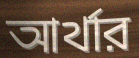
আর্থার